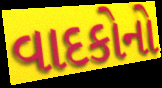
વાદકોનો